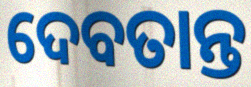
ଦେବତାନ୍ତ